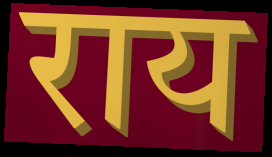
राय